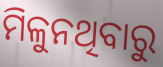
ମିଳୁନଥିବାରୁ